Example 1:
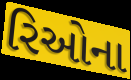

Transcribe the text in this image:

રિઓના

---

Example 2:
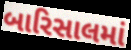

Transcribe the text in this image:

બારિસાલમાં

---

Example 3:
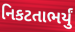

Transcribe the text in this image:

નિકટતાભર્યું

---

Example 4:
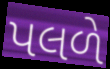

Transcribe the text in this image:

પલળે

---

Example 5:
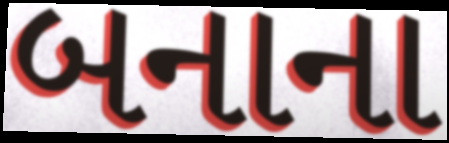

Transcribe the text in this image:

બનાના